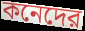
কনেদের